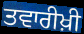
ਤਵਾਰੀਖ਼ੀ